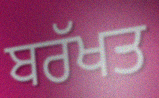
ਬਰੱਖਤ